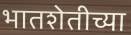
भातशेतीच्या